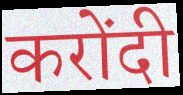
करोंदी